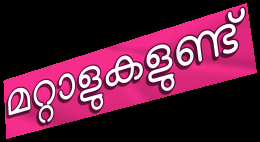
മറ്റാളുകളുണ്ട്